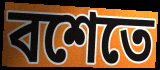
বশেতে